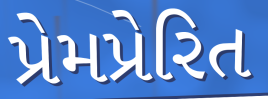
પ્રેમપ્રેરિત